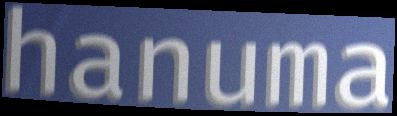
hanuma